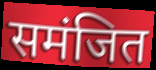
समंजित